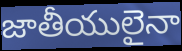
జాతీయులైనా